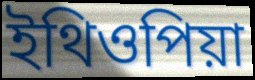
ইথিওপিয়া